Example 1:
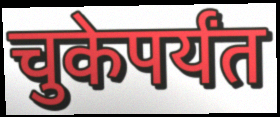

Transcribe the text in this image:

चुकेपर्यंत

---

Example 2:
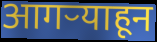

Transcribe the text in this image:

आगऱ्याहून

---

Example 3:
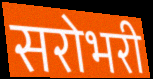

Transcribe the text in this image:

सरोभरी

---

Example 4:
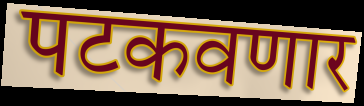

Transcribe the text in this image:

पटकवणार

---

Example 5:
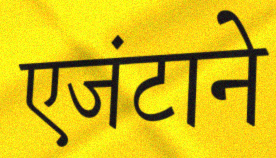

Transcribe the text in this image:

एजंटाने